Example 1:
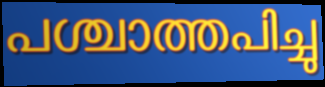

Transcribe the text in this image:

പശ്ചാത്തപിച്ചു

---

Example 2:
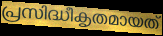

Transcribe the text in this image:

പ്രസിദ്ധീകൃതമായത്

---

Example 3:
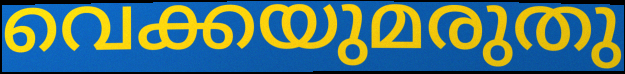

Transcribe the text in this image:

വെക്കയുമരുതു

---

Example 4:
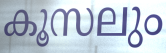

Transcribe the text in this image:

കൂസലും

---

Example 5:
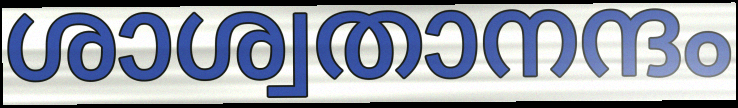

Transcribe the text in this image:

ശാശ്വതാനന്ദം